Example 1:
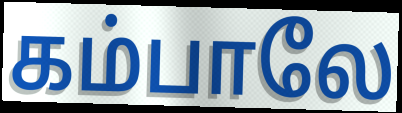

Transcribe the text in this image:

கம்பாலே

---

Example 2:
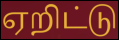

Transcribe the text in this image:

ஏறிட்டு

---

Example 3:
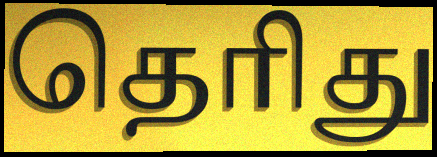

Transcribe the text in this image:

தெரிது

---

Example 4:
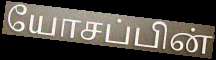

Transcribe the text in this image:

யோசப்பின்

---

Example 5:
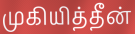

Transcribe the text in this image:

முகியித்தீன்